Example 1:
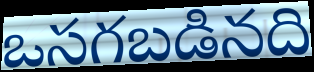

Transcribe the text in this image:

ఒసగబడినది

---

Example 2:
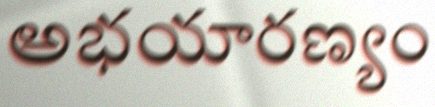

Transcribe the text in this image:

అభయారణ్యం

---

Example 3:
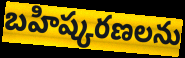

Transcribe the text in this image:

బహిష్కరణలను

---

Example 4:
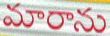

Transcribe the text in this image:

మారాను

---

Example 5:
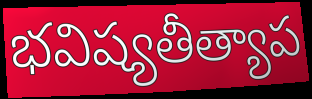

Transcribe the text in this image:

భవిష్యతీత్యాప